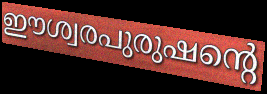
ഈശ്വരപുരുഷന്റെ